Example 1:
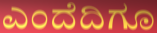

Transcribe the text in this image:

ಎಂದೆದಿಗೂ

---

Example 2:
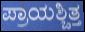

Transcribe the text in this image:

ಪ್ರಾಯಶ್ಚಿತ್ತ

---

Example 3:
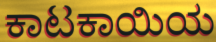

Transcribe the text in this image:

ಕಾಟಕಾಯಿಯ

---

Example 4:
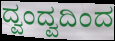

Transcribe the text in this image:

ದ್ವಂದ್ವದಿಂದ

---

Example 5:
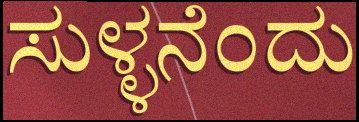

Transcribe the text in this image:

ಸುಳ್ಳನೆಂದು